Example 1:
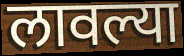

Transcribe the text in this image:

लावल्या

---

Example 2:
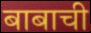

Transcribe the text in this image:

बाबाची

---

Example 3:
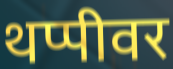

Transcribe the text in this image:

थप्पीवर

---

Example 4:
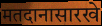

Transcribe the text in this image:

मतदानासारखे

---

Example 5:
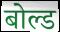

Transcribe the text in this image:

बोल्ड